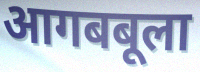
आगबबूला